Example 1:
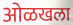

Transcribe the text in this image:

ओळखला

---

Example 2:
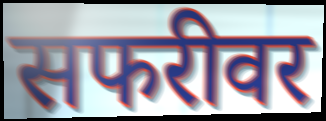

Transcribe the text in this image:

सफरीवर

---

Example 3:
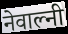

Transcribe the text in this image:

नेवाल्नी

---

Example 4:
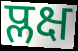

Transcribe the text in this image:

प्लक्ष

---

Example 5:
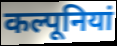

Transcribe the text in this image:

कल्पूनियां